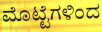
ಮೊಟ್ಟೆಗಳಿಂದ